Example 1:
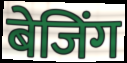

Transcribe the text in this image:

बेजिंग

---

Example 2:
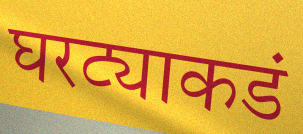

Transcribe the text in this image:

घरट्याकडं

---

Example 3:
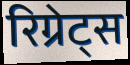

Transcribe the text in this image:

रिग्रेट्स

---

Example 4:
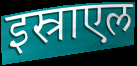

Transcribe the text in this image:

इस्राएल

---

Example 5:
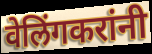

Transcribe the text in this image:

वेलिंगकरांनी